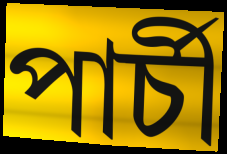
পাৰ্চী